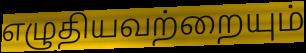
எழுதியவற்றையும்